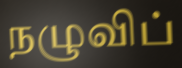
நழுவிப்